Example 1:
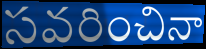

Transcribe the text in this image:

సవరించినా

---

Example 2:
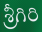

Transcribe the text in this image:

శ్రీగిరి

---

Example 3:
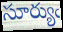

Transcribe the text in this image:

సూర్యుఁ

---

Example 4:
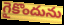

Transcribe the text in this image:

గైకొందును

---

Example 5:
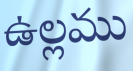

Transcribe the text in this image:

ఉల్లము